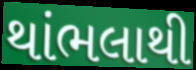
થાંભલાથી